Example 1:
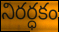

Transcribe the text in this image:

నిరర్ధకం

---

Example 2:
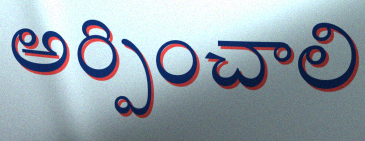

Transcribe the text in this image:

అర్పించాలి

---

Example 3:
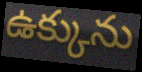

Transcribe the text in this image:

ఉక్కును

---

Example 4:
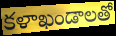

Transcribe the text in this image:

కళాఖండాలతో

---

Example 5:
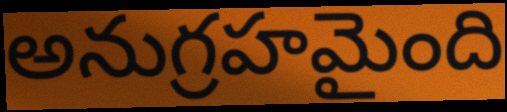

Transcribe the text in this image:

అనుగ్రహమైంది